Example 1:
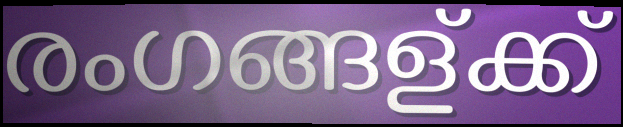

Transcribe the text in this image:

രംഗങ്ങള്ക്ക്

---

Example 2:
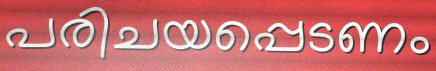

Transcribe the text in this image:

പരിചയപ്പെടണം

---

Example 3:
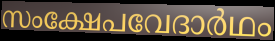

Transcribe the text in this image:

സംക്ഷേപവേദാർഥം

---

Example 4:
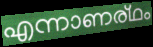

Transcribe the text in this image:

എന്നാണര്ഥം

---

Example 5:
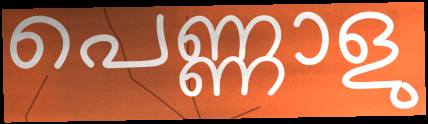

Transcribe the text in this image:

പെണ്ണാളു